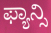
ಫ್ಯಾನ್ಸಿ